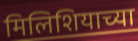
मिलिशियाच्या